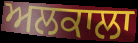
ਅਲਕਾਲਾ